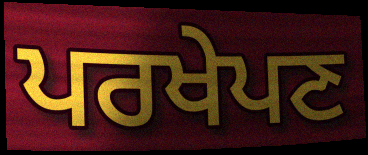
ਪਰਖੇਪਣ